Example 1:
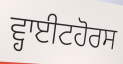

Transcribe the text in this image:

ਵ੍ਹਾਈਟਹੋਰਸ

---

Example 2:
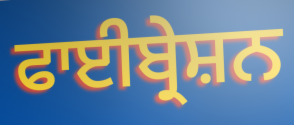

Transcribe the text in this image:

ਫਾਈਬ੍ਰੇਸ਼ਨ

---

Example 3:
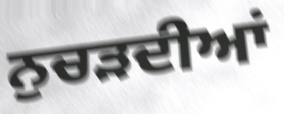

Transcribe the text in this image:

ਨੁਚੜਦੀਆਂ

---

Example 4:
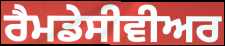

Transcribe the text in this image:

ਰੈਮਡੇਸੀਵੀਅਰ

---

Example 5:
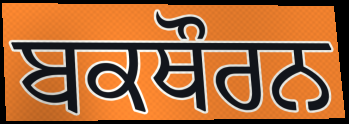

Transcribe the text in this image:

ਬਕਥੌਰਨ